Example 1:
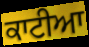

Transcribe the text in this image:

ਕਾਟੀਆ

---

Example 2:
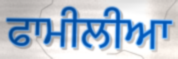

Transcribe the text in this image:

ਫਾਮੀਲੀਆ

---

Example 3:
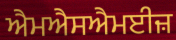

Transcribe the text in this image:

ਐਮਐਸਐਮਈਜ਼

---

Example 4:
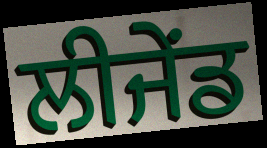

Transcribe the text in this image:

ਲੀਜੇਂਡ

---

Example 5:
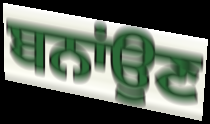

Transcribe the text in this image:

ਬਨਾਂਉਣ